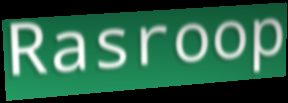
Rasroop